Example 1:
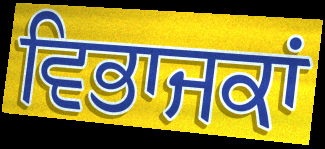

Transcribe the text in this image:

ਵਿਭਾਜਕਾਂ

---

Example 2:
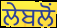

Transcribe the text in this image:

ਲੇਬਲੋਂ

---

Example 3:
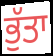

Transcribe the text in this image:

ਭੁੱਤਾ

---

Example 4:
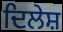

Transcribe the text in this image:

ਦਿਲੇਸ਼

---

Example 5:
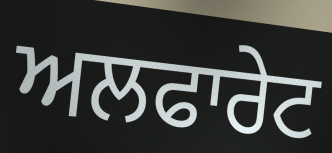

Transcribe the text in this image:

ਅਲਫਾਰੇਟ